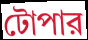
টোপার